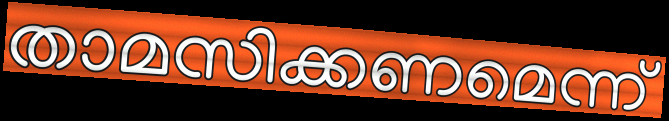
താമസിക്കണമെന്ന്